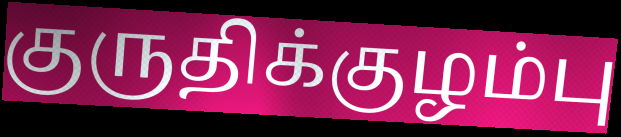
குருதிக்குழம்பு